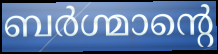
ബർഗ്മാന്റെ